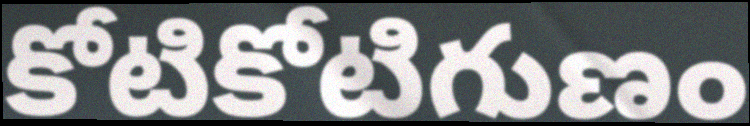
కోటికోటిగుణం